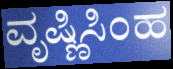
ವೃಷ್ಣಿಸಿಂಹ